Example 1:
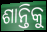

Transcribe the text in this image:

ଶାନ୍ତିକୁ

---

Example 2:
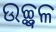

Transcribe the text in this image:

ଉଚ୍ଛ୍ୱଳ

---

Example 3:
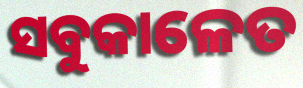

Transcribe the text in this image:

ସବୁକାଳେତ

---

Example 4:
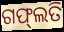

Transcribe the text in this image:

ଗଫ୍‌ଲତି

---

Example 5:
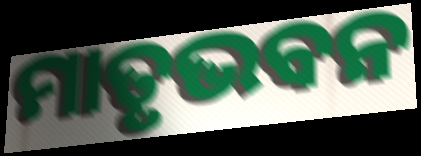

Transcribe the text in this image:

ମାତୃଭବନ